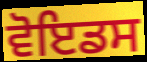
ਵੋਇਡਸ